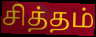
சித்தம்